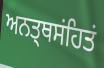
ਅਨਤ੍ਥਸਂਹਿਤਂ